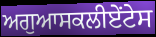
ਅਗੁਆਸਕਲੀਏਂਟੇਸ